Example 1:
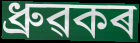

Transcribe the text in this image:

ধ্ৰুৱকৰ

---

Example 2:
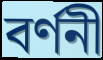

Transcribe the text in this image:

বৰ্ণনী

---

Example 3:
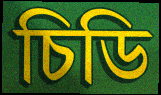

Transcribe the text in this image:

চিডি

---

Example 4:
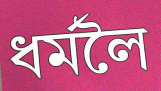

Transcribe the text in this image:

ধৰ্মলৈ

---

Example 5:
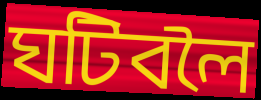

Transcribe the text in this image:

ঘটিবলৈ